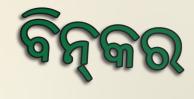
ବିନ୍‌କର